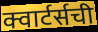
क्वार्टर्सची